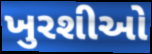
ખુરશીઓ